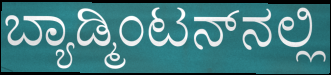
ಬ್ಯಾಡ್ಮಿಂಟನ್‌ನಲ್ಲಿ